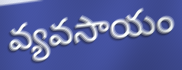
వ్యవసాయం